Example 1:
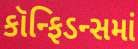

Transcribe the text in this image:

કૉન્ફિડન્સમાં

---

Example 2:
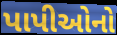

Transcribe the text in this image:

પાપીઓનો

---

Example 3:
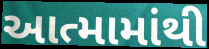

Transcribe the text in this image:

આત્મામાંથી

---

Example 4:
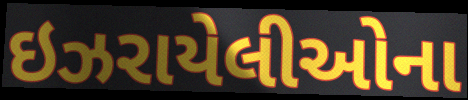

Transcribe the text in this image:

ઇઝરાયેલીઓના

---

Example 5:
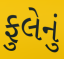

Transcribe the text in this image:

ફુલેનું